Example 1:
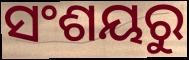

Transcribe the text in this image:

ସଂଶୟରୁ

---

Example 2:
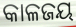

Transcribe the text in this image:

କାଳଜୟ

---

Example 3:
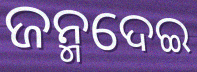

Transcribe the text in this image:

ଜନ୍ମଦେଇ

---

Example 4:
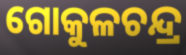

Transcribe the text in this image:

ଗୋକୁଳଚନ୍ଦ୍ର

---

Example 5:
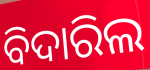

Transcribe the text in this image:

ବିଦାରିଲ